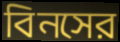
বিনসের